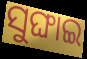
ସୁଙ୍ଘାଇ